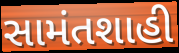
સામંતશાહી